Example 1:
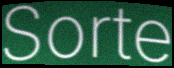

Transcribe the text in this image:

Sorte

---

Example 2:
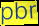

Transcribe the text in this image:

pbr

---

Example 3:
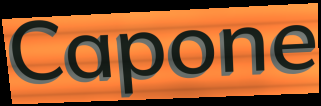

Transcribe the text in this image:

Capone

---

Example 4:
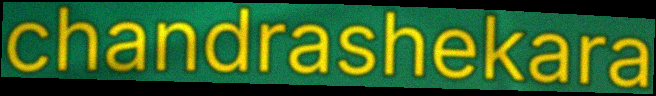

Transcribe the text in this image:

chandrashekara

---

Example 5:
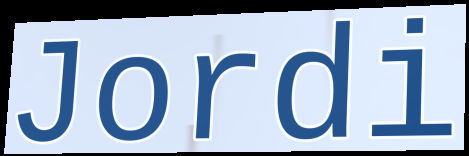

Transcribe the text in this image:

Jordi